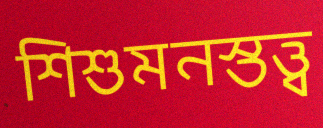
শিশুমনস্তত্ত্ব